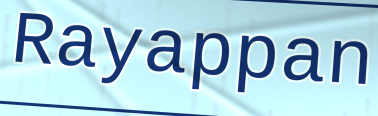
Rayappan